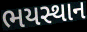
ભયસ્થાન